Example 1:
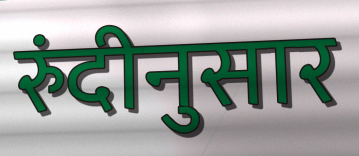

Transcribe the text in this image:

रुंदीनुसार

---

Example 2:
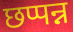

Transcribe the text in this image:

छप्पन्न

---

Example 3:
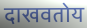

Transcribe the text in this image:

दाखवतोय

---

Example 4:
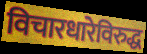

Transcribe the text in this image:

विचारधारेविरुद्ध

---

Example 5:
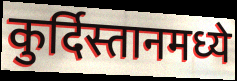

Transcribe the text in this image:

कुर्दिस्तानमध्ये